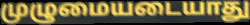
முழுமையடையாது